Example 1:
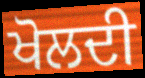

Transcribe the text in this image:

ਖੋਲਦੀ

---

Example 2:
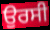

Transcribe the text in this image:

ਉਰਸੀ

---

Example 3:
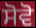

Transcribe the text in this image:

ਸੋਵੋ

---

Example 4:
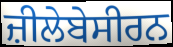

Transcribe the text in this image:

ਜ਼ੀਲੇਬੇਸੀਰਨ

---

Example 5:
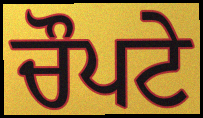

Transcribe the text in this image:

ਚੌਪਟੇ